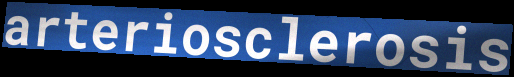
arteriosclerosis